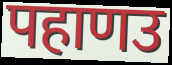
पहाणउ